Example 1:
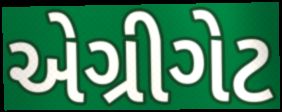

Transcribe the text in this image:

એગ્રીગેટ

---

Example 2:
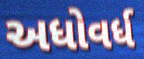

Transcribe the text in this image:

અધોવર્ધ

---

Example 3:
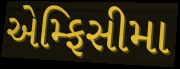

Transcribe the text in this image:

એમ્ફિસીમા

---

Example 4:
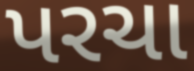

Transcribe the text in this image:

પરચા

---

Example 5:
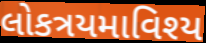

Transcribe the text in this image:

લોકત્રયમાવિશ્ય